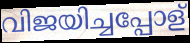
വിജയിച്ചപ്പോള്